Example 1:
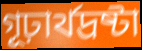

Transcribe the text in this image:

গূঢ়ার্থদ্রষ্টা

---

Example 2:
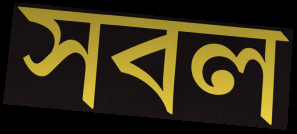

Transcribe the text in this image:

সবল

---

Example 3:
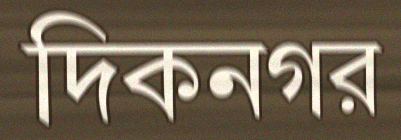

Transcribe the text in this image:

দিকনগর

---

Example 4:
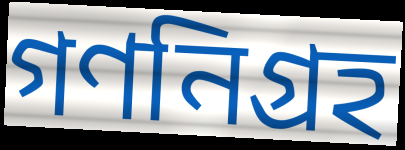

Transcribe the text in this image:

গণনিগ্রহ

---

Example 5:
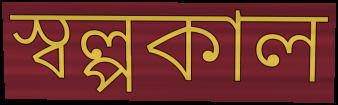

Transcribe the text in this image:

স্বল্পকাল